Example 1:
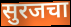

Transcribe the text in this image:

सुरजचा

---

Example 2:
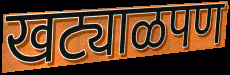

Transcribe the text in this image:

खट्याळपण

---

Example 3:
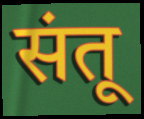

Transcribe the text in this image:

संतू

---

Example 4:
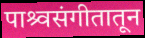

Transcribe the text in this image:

पाश्र्वसंगीतातून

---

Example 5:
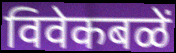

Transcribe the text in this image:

विवेकबळें